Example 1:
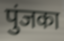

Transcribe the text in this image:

पुंजका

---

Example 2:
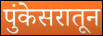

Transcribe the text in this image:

पुंकेसरातून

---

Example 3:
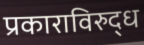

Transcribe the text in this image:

प्रकाराविरुद्ध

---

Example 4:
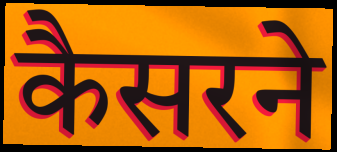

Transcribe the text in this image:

कैसरने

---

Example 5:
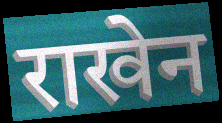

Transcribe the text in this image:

राखेन